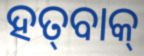
ହତ୍‌ବାକ୍